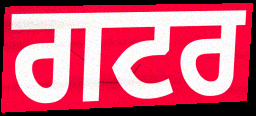
ਗਟਰ